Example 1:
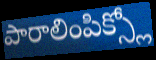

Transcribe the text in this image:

పారాలింపిక్స్లో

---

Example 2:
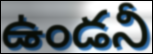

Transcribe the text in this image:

ఉండనీ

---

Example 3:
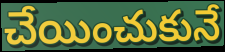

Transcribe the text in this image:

చేయించుకునే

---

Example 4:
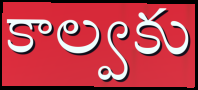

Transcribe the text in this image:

కాల్వకు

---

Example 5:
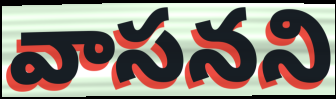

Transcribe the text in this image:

వాసనని